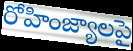
రోహింజ్యాలపై